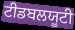
ਟੀਡਬਲਯੂਟੀ